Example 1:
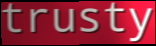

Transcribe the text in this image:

trusty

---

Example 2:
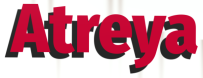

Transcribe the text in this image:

Atreya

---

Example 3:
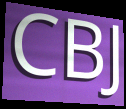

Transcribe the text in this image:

CBJ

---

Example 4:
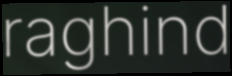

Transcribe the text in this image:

raghind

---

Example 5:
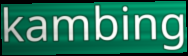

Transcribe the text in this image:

kambing